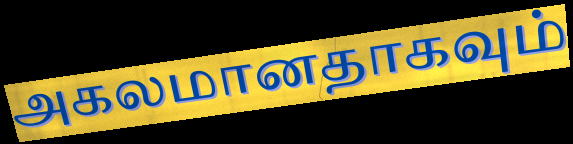
அகலமானதாகவும்